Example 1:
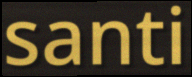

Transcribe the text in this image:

santi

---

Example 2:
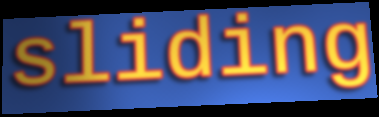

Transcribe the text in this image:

sliding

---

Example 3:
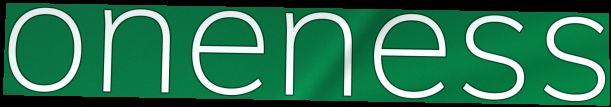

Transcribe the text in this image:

oneness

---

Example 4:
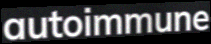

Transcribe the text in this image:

autoimmune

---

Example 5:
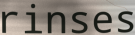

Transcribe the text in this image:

rinses